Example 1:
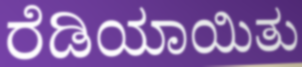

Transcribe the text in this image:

ರೆಡಿಯಾಯಿತು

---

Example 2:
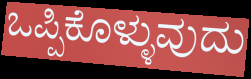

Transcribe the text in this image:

ಒಪ್ಪಿಕೊಳ್ಳುವುದು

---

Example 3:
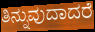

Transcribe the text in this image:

ತಿನ್ನುವುದಾದರೆ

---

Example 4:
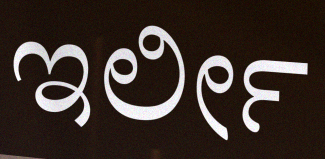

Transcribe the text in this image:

ಇರ್ಲೀ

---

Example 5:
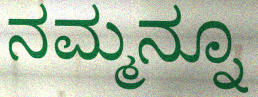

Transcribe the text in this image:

ನಮ್ಮನ್ನೂ